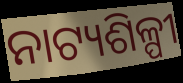
ନାଟ୍ୟଶିଳ୍ପୀ